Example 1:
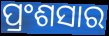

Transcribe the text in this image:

ପ୍ରଂଶସାର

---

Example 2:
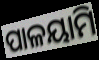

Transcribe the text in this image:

ପାଳୟାମି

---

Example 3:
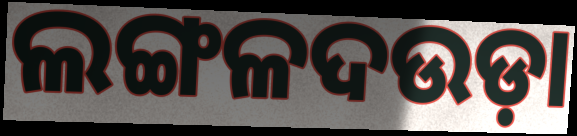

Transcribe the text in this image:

ଲଙ୍ଗଳଦଉଡ଼ା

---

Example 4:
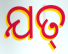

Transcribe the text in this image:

ଯତ୍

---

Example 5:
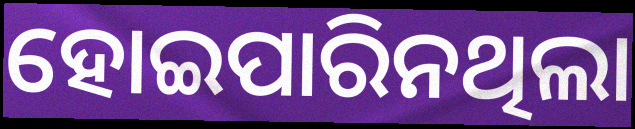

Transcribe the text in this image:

ହୋଇପାରିନଥିଲା